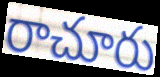
రాచూరు